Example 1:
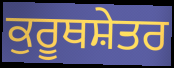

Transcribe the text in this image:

ਕੁਰੂਥਸ਼ੇਤਰ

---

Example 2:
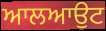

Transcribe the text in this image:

ਆਲਆਉਟ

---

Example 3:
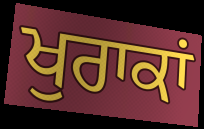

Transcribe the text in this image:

ਖੁਰਾਕਾਂ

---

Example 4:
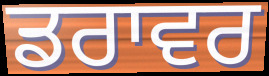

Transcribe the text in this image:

ਡਰਾਵਰ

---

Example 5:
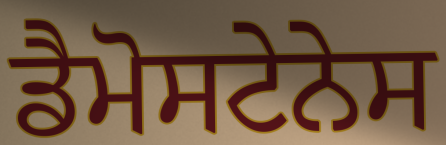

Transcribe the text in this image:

ਡੈਮੋਸਟੇਨੇਸ